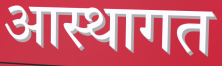
आस्थागत